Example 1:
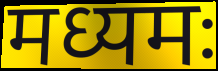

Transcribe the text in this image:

मध्यमः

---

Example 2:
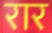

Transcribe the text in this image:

रार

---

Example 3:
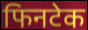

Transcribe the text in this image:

फिनटेक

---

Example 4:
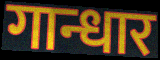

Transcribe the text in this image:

गान्धार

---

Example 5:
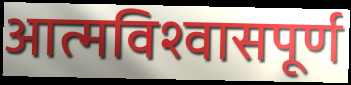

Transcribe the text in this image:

आत्मविश्वासपूर्ण